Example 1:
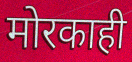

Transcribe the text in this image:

मोरकाही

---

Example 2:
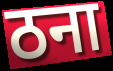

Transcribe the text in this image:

ठना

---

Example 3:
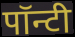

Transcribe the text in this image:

पॉन्टी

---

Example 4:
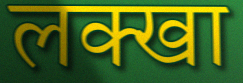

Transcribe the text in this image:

लक्खा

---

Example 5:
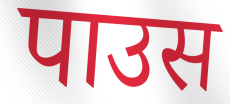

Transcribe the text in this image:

पाउस